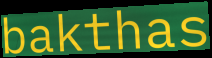
bakthas